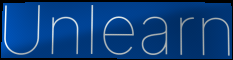
Unlearn